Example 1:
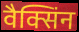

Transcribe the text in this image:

वैक्सिंन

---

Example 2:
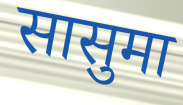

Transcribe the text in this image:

सासुमा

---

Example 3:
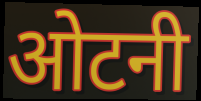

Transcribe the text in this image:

ओटनी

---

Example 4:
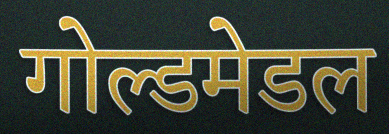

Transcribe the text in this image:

गोल्डमेडल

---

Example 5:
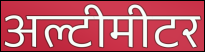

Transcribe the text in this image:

अल्टीमीटर